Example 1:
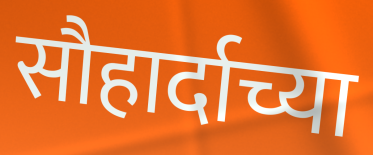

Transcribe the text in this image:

सौहार्दाच्या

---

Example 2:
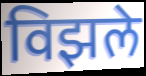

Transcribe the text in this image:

विझले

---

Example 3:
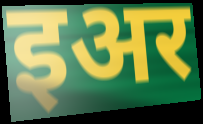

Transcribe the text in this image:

इअर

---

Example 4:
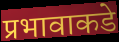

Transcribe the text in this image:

प्रभावाकडे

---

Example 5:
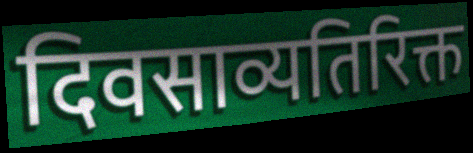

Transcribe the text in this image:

दिवसाव्यतिरिक्त